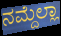
ನಮ್ದೆಲ್ಲಾ